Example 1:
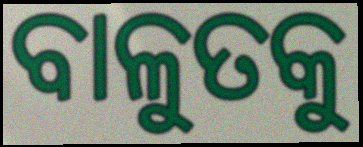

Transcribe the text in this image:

ବାଳୁତକୁ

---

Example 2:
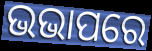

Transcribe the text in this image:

ଭଭାପରେ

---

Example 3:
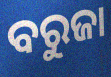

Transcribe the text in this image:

ବରୁଜା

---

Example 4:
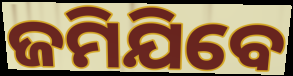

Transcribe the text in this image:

ଜମିଯିବେ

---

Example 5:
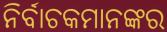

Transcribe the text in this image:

ନିର୍ବାଚକମାନଙ୍କର